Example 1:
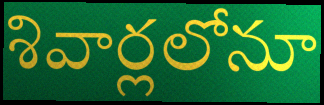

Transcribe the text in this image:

శివార్లలోనూ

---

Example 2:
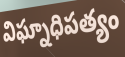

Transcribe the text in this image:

విఘ్నాధిపత్యం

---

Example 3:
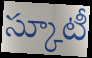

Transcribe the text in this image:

స్కూటీ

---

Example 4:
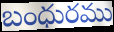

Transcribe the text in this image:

బంధురము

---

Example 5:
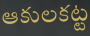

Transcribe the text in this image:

ఆకులకట్ట